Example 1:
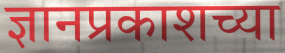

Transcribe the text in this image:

ज्ञानप्रकाशच्या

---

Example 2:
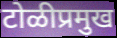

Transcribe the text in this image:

टोळीप्रमुख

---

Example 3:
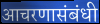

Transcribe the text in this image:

आचरणासंबंधी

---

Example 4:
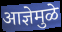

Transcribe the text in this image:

आज्ञेमुळे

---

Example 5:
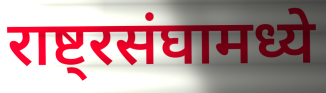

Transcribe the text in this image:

राष्ट्रसंघामध्ये